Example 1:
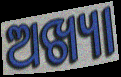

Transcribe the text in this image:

ଅଖ୍ୟା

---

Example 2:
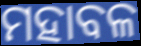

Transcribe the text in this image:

ମହାବଳ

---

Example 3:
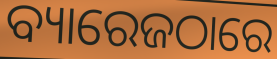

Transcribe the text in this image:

ବ୍ୟାରେଜଠାରେ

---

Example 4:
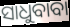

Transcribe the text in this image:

ସାଧୁବାବା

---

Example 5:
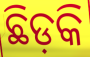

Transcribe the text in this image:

ଛିଡ଼କି